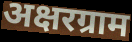
अक्षरग्राम